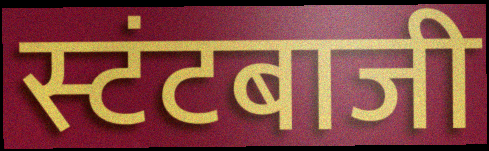
स्टंटबाजी